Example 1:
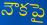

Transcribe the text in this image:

నౌకపై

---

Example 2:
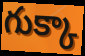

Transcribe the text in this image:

గుక్కా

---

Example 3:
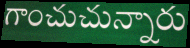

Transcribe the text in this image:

గాంచుచున్నారు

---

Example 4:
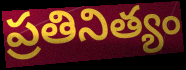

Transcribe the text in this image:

ప్రతినిత్యం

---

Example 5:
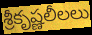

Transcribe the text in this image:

శ్రీకృష్ణలీలలు